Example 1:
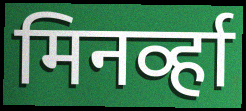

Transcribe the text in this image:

मिनर्व्हा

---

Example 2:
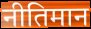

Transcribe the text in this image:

नीतिमान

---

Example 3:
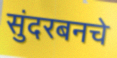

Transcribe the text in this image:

सुंदरबनचे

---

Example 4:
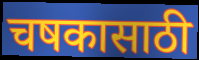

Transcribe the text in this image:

चषकासाठी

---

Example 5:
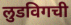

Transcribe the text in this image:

लुडविगची